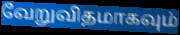
வேறுவிதமாகவும்